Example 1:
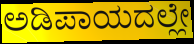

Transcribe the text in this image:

ಅಡಿಪಾಯದಲ್ಲೇ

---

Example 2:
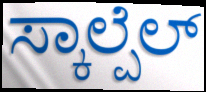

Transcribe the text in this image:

ಸ್ಕಾಲ್ಪೆಲ್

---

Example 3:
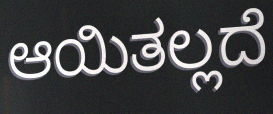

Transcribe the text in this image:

ಆಯಿತಲ್ಲದೆ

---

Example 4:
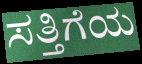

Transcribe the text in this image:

ಸತ್ತಿಗೆಯ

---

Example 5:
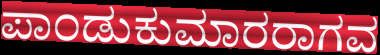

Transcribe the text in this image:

ಪಾಂಡುಕುಮಾರರಾಗವ